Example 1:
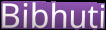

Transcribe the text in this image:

Bibhuti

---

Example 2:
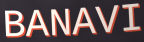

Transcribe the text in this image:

BANAVI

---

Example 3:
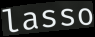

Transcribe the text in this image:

lasso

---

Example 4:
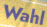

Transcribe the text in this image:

Wahl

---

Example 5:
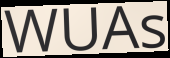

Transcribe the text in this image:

WUAs